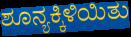
ಶೂನ್ಯಕ್ಕಿಳಿಯಿತು